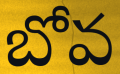
బోవ